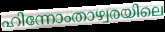
ഹിന്നോംതാഴ്വരയിലെ